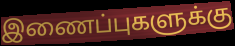
இணைப்புகளுக்கு